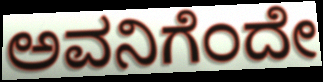
ಅವನಿಗೆಂದೇ